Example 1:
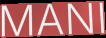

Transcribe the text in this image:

MANI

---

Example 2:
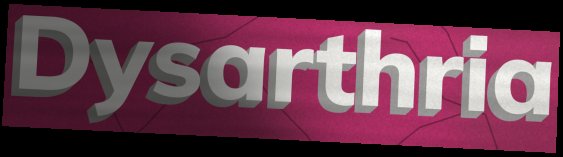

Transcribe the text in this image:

Dysarthria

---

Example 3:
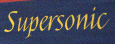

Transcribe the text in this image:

Supersonic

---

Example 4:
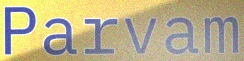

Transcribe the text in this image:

Parvam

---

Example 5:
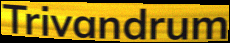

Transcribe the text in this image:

Trivandrum